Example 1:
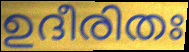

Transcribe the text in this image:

ഉദീരിതഃ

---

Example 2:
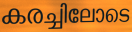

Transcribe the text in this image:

കരച്ചിലോടെ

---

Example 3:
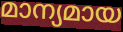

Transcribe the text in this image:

മാന്യമായ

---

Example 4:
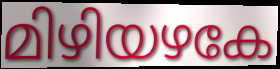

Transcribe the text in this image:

മിഴിയഴകേ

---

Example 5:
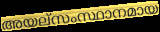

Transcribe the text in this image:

അയല്സംസ്ഥാനമായ